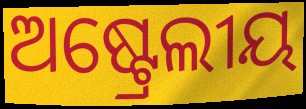
ଅଷ୍ଟ୍ରେଲୀୟ